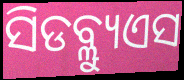
ସିଡବ୍ଲ୍ୟୁଏସ